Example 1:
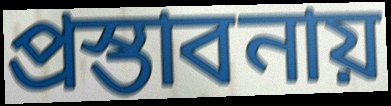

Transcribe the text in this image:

প্রস্তাবনায়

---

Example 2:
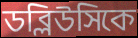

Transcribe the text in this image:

ডব্লিউসিকে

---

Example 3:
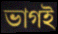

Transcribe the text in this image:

ভাগই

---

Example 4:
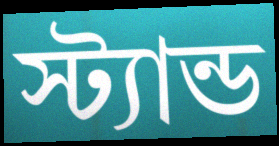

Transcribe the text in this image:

স্ট্যান্ড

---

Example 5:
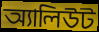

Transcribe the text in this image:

অ্যালিউট